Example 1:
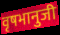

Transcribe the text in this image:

वृषभानुजी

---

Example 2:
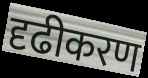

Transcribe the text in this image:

दृढीकरण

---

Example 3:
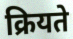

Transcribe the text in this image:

क्रियते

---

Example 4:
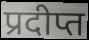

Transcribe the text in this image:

प्रदीप्त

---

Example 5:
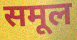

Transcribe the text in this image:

समूल